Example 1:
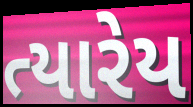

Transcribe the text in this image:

ત્યારેય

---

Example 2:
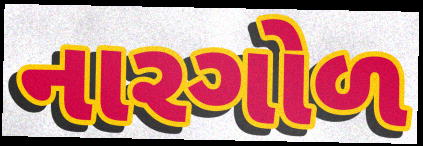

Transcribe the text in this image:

નારગોળ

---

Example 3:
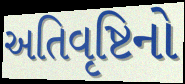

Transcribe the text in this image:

અતિવૃષ્ટિનો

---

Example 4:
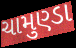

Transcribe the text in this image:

ચામુણ્ડા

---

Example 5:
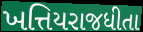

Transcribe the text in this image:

ખત્તિયરાજધીતા